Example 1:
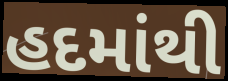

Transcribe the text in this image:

હદમાંથી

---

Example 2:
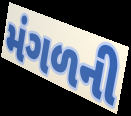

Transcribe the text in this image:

મંગળની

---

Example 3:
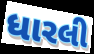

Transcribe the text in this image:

ધારલી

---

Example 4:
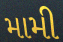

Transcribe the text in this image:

મામી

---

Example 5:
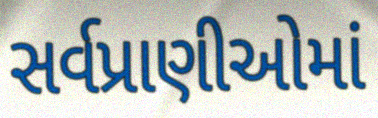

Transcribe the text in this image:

સર્વપ્રાણીઓમાં